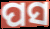
ପସ